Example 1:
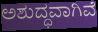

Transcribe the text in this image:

ಅಶುದ್ಧವಾಗಿವೆ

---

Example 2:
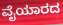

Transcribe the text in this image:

ವೈಯಾರದ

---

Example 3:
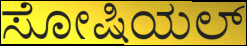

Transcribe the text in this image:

ಸೋಷಿಯಲ್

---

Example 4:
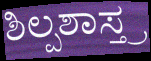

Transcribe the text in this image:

ಶಿಲ್ಪಶಾಸ್ತ್ರ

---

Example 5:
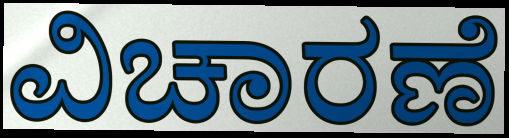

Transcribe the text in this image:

ವಿಚಾರಣೆ